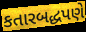
કતારબદ્ધપણે